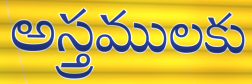
అస్త్రములకు